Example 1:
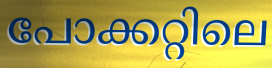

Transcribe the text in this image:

പോക്കറ്റിലെ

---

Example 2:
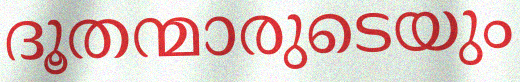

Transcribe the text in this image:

ദൂതന്മാരുടെയും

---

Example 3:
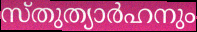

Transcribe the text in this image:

സ്തുത്യാർഹനും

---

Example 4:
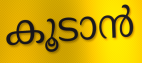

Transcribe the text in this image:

കൂടാൻ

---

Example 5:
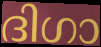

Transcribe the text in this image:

ദിഗാ